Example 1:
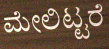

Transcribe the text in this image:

ಮೇಲಿಟ್ಟರೆ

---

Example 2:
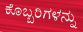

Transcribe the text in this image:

ಕೊಬ್ಬರಿಗಳನ್ನು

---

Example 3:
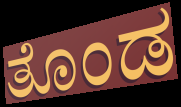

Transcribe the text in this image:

ತೊಂಡ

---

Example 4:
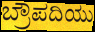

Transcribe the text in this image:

ಬ್ರೌಪದಿಯು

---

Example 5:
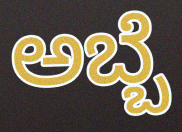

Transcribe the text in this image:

ಅಬ್ಬೆ